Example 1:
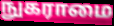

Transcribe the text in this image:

நுகராமை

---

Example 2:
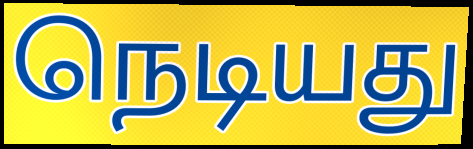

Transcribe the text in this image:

நெடியது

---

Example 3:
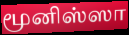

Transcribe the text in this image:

மூனிஸ்ஸா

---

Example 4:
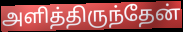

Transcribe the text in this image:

அளித்திருந்தேன்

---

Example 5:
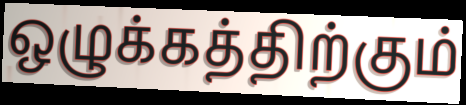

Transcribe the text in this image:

ஒழுக்கத்திற்கும்